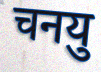
चनयु